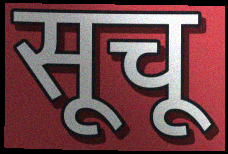
सूचू